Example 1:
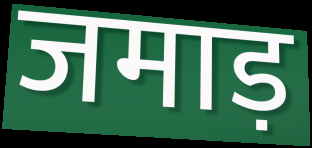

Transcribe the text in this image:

जमाड़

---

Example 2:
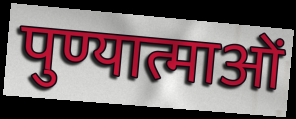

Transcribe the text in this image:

पुण्यात्माओं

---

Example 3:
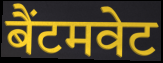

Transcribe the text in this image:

बैंटमवेट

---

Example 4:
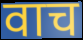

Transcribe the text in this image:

वाच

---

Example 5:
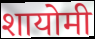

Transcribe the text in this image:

शायोमी